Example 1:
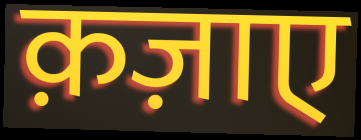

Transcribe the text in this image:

क़ज़ाए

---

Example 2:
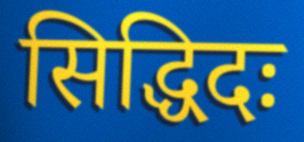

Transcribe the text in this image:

सिद्धिदः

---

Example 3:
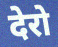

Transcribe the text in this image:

देरो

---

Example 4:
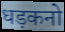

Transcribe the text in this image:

धड़कनो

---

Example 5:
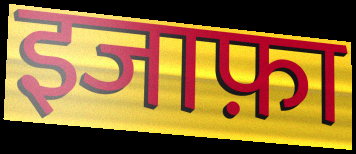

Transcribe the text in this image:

इजाफ़ा